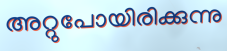
അറ്റുപോയിരിക്കുന്നു